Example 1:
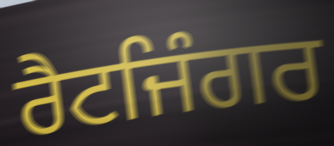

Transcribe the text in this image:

ਰੈਟਜਿੰਗਰ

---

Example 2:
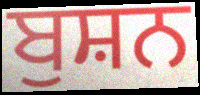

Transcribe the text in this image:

ਬੁਸ਼ਨ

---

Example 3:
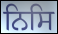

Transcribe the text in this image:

ਨਿਸਿ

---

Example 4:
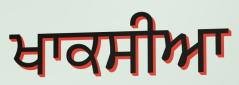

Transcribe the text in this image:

ਖਾਕਸੀਆ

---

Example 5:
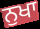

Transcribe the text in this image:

ਨੁਖਾ